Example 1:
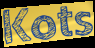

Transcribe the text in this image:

Kots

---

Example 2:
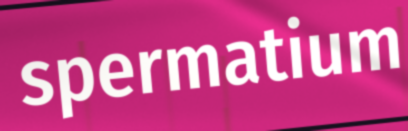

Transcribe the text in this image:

spermatium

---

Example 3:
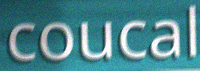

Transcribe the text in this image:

coucal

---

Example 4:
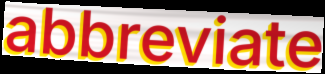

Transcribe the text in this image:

abbreviate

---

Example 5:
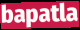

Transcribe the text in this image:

bapatla